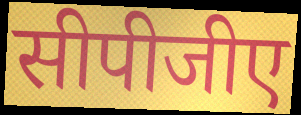
सीपीजीए